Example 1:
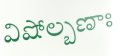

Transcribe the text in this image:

విషోల్బణాః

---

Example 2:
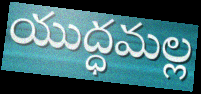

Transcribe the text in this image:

యుద్ధమల్ల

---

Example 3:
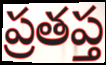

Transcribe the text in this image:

ప్రతప్త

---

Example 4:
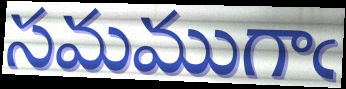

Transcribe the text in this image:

సమముగాఁ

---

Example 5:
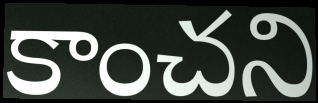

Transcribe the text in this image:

కాంచని